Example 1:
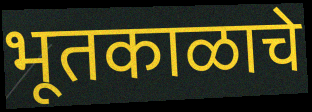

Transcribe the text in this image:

भूतकाळाचे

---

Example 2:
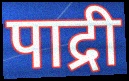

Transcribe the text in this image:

पाद्री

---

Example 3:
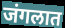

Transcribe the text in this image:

जंगलात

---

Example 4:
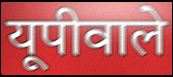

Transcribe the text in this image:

यूपीवाले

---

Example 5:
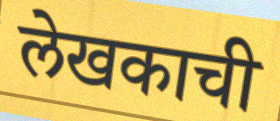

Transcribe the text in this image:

लेखकाची